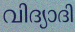
വിദ്യാദി